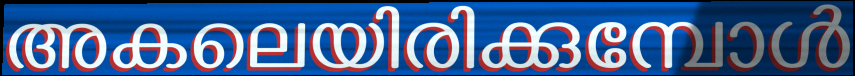
അകലെയിരിക്കുമ്പോൾ